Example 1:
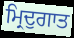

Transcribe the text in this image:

ਮ੍ਰਿਦੁਗਾਤ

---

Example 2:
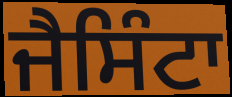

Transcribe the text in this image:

ਜੈਸਿੰਟਾ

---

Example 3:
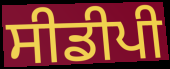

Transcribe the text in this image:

ਸੀਡੀਪੀ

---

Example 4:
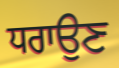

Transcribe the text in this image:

ਧਰਾਉਣ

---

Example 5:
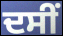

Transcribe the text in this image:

ਦਸੀਂ